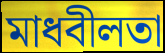
মাধবীলতা